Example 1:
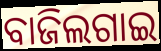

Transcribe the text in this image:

ବାଜିଲଗାଇ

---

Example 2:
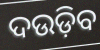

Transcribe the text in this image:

ଦଉଡ଼ିବ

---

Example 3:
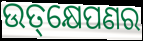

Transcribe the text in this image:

ଉତ୍‌କ୍ଷେପଣର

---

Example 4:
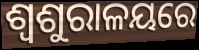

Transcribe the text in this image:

ଶ୍ଵଶୁରାଳୟରେ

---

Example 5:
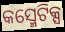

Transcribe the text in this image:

କସ୍ମେଟିକ୍ସ